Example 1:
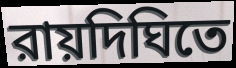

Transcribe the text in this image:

রায়দিঘিতে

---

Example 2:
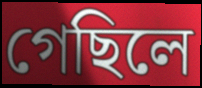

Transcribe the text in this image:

গেছিলে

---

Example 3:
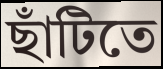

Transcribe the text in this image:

ছাঁটিতে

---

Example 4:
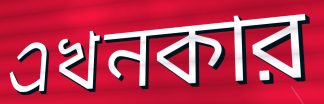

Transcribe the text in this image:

এখনকার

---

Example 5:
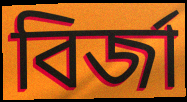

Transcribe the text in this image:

বির্জা